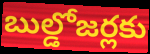
బుల్డోజర్లకు